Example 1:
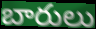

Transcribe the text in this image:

బారులు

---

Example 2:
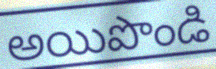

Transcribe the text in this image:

అయిపొండి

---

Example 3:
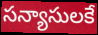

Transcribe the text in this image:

సన్యాసులకే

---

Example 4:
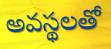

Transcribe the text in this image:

అవస్థలతో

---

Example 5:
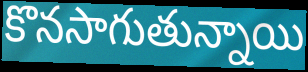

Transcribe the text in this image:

కొనసాగుతున్నాయి